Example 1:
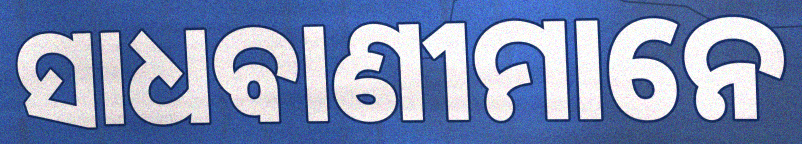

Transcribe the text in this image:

ସାଧବାଣୀମାନେ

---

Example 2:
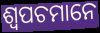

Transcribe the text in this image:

ଶ୍ୱପଚମାନେ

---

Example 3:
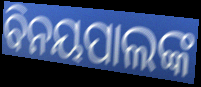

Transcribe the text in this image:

ବିନୟପାଲଙ୍କ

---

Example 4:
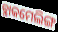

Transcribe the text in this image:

ବ୍ଳାକମେଲିଙ୍ଗ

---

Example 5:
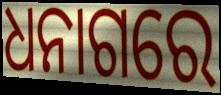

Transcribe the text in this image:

ଧନାଗରେ